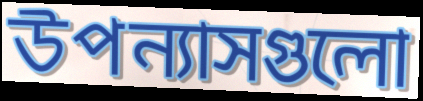
উপন্যাসগুলো